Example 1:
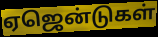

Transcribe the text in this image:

ஏஜென்டுகள்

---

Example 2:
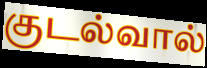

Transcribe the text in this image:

குடல்வால்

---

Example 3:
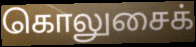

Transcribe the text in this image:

கொலுசைக்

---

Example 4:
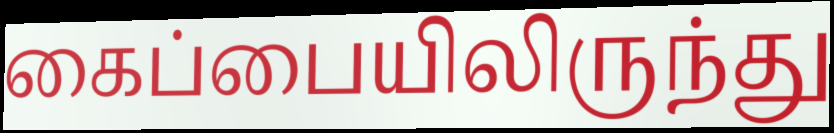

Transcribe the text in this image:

கைப்பையிலிருந்து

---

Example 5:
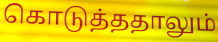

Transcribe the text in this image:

கொடுத்ததாலும்